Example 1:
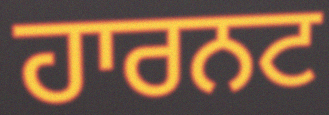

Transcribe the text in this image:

ਹਾਰਨਟ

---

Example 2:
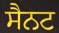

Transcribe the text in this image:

ਸੈਨਟ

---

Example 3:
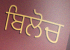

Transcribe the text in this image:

ਬਿਲੋਚ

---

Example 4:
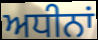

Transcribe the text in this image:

ਅਧੀਨਾਂ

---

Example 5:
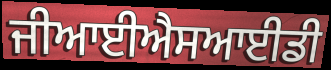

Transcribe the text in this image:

ਜੀਆਈਐਸਆਈਡੀ